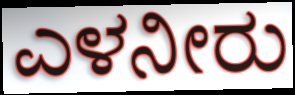
ಎಳನೀರು